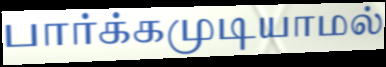
பார்க்கமுடியாமல்